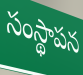
సంస్థాపన